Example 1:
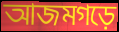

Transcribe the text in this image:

আজমগড়ে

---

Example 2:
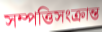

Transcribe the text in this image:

সম্পত্তিসংক্রান্ত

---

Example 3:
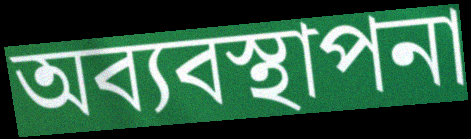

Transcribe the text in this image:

অব্যবস্থাপনা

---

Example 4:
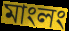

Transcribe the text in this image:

মাংলং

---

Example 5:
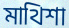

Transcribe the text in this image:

মাথিশা